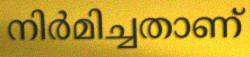
നിർമിച്ചതാണ്